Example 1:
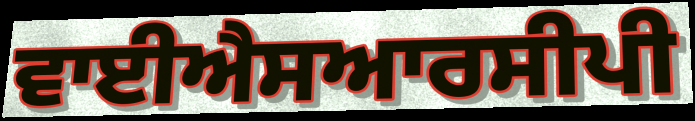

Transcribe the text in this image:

ਵਾਈਐਸਆਰਸੀਪੀ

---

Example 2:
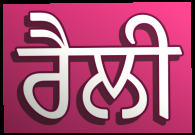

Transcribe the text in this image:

ਰੈਲੀ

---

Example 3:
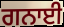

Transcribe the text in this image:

ਗਨਾਈ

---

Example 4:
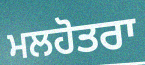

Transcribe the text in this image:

ਮਲਹੋਤਰਾ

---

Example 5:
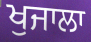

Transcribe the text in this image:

ਖੁਜਾਲਾ